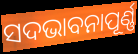
ସଦଭାବନାପୂର୍ଣ୍ଣ